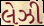
લેઝી